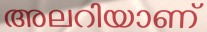
അലറിയാണ്